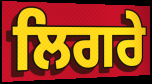
ਲਿਗਰੇ